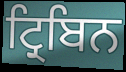
ਟ੍ਰਿਬਿਨ